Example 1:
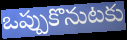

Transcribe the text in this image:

ఒప్పుకొనుటకు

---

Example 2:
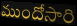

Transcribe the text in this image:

ముందోసారి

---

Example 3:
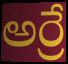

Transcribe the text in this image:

అర్రే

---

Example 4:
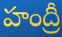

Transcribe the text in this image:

హంద్రీ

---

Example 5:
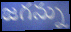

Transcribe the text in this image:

జగన్ను